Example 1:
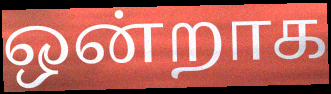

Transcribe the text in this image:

ஒன்றாக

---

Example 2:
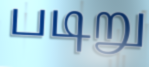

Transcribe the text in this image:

படிறு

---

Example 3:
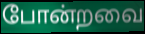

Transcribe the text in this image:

போன்றவை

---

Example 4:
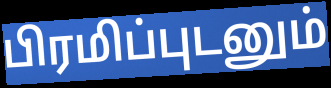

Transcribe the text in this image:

பிரமிப்புடனும்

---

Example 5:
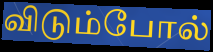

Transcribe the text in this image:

விடும்போல்